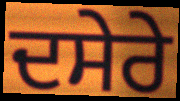
ਦਸੇਰੇ